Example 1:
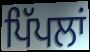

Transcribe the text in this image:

ਪਿੱਪਲਾਂ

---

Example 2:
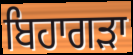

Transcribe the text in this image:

ਬਿਹਾਗੜਾ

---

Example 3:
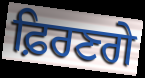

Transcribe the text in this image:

ਫ਼ਿਰਣਗੇ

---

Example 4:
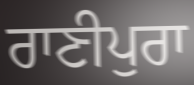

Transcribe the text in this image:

ਰਾਣੀਪੁਰਾ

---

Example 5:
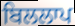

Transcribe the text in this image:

ਬਿਲਲਾਪ